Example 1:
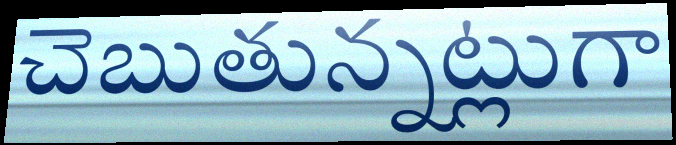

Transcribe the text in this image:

చెబుతున్నట్లుగా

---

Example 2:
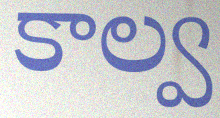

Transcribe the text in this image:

కాల్వ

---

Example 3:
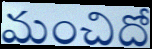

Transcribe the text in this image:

మంచిదో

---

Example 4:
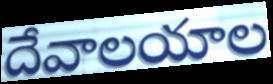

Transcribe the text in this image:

దేవాలయాల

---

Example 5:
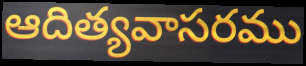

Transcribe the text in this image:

ఆదిత్యవాసరము